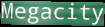
Megacity